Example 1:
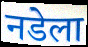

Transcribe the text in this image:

नडेला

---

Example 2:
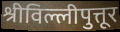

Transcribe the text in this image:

श्रीविल्लीपुत्तूर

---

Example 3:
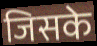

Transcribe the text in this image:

जिसके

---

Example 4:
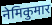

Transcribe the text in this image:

नेमिकुमार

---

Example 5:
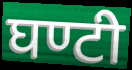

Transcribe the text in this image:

घण्टी